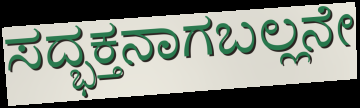
ಸದ್ಭಕ್ತನಾಗಬಲ್ಲನೇ